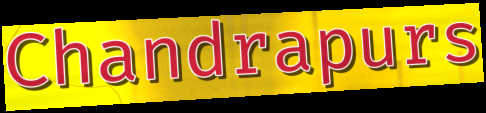
Chandrapurs